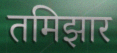
तमिझार